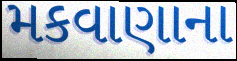
મકવાણાના